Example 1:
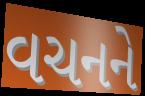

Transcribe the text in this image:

વચનને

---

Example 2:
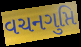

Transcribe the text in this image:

વચનગુપ્તિ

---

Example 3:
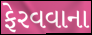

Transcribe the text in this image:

ફેરવવાના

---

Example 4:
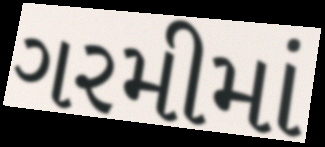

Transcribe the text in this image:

ગરમીમાં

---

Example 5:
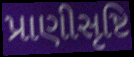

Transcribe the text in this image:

પ્રાણીસૃષ્ટિ